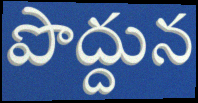
పొద్దున